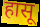
हासू